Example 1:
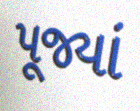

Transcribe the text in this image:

પૂજ્યાં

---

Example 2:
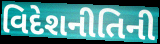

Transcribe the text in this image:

વિદેશનીતિની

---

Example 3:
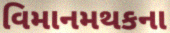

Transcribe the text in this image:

વિમાનમથકના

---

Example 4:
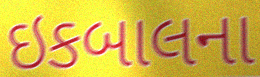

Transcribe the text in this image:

ઇકબાલના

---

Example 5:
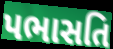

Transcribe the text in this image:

પભાસતિ